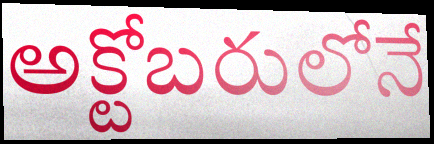
అక్టోబరులోనే